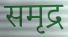
समृद्र